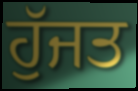
ਹੁੱਜਤ